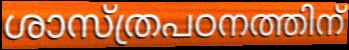
ശാസ്ത്രപഠനത്തിന്